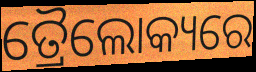
ତ୍ରୈଲୋକ୍ୟରେ